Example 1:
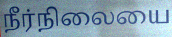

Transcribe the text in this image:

நீர்நிலையை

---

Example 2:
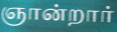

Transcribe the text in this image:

ஞான்றார்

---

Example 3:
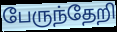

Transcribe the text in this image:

பேருந்தேறி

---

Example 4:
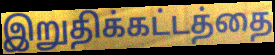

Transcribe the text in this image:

இறுதிக்கட்டத்தை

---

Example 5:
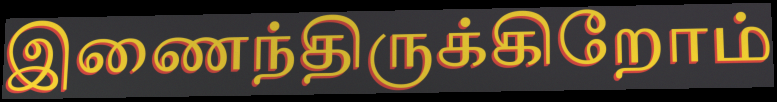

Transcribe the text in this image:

இணைந்திருக்கிறோம்